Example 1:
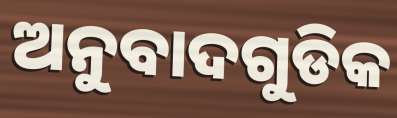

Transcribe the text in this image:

ଅନୁବାଦଗୁଡିକ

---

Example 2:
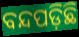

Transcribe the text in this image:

ବନ୍ଦପଡ଼ିଛି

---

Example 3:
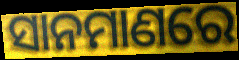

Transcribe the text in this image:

ସାନମାଣରେ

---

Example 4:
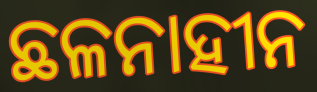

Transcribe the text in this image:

ଛଳନାହୀନ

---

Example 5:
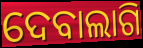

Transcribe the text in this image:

ଦେବାଲାଗି